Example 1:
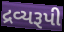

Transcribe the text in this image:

દ્રવ્યરૂપી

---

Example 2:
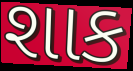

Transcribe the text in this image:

શાક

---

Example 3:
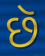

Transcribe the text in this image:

છૅ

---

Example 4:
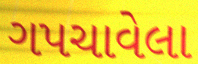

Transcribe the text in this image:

ગપચાવેલા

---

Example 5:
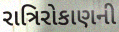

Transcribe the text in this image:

રાત્રિરોકાણની